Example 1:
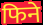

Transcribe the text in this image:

फिने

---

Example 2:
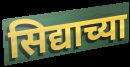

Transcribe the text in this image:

सिद्याच्या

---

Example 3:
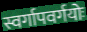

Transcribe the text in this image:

स्वर्गापवर्गयोः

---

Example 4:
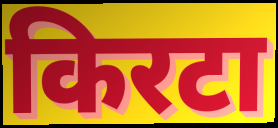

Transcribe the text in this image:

किरटा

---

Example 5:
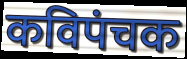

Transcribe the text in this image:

कविपंचक